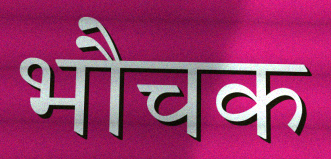
भौचक